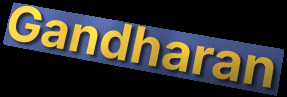
Gandharan